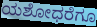
ಯಶೋಧರೆಗೂ